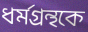
ধর্মগ্রন্থকে